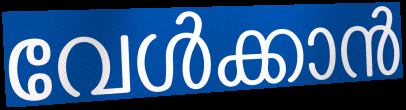
വേൾക്കാൻ